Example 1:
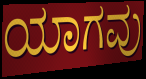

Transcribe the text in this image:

ಯಾಗವು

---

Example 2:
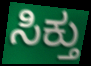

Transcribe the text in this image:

ಸಿಕ್ತು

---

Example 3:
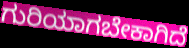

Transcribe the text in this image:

ಗುರಿಯಾಗಬೇಕಾಗಿದೆ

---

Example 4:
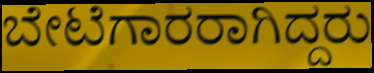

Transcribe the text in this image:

ಬೇಟೆಗಾರರಾಗಿದ್ದರು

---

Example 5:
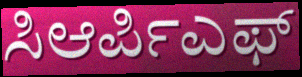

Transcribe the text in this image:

ಸಿಆರ್ಪಿಎಫ್